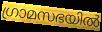
ഗ്രാമസഭയിൽ